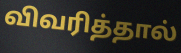
விவரித்தால்